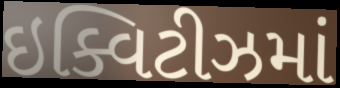
ઇક્વિટીઝમાં